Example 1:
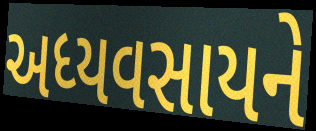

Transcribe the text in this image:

અધ્યવસાયને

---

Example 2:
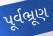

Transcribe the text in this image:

પૂર્વભ્રૂણ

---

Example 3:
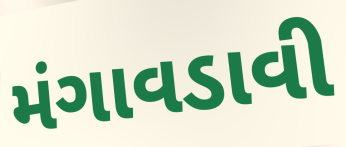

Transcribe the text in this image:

મંગાવડાવી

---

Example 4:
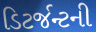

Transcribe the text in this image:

ડિટર્જન્ટની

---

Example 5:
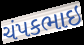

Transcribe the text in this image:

ચંપકભાઇ